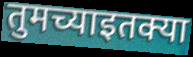
तुमच्याइतक्या